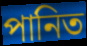
পানিত